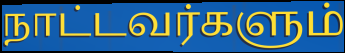
நாட்டவர்களும்